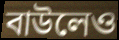
বাউলেও